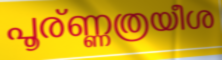
പൂര്ണ്ണത്രയീശ